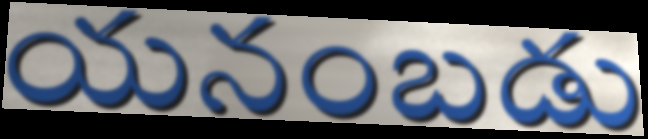
యనంబడు